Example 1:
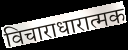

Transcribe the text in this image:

विचाराधारात्मक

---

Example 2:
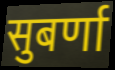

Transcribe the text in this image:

सुबर्णा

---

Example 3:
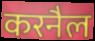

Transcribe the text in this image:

करनैल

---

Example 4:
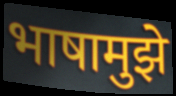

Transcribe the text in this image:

भाषामुझे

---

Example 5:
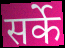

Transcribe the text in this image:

सर्के